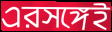
এরসঙ্গেই